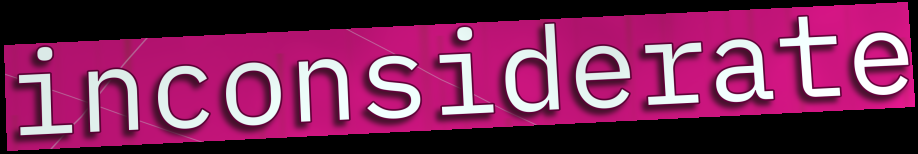
inconsiderate